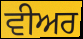
ਵੀਅਰ